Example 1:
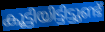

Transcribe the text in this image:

കൂട്ടിയിട്ടിട്ടുണ്ട്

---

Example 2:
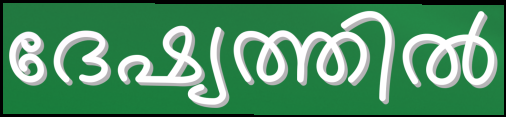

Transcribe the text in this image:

ദേഷ്യത്തിൽ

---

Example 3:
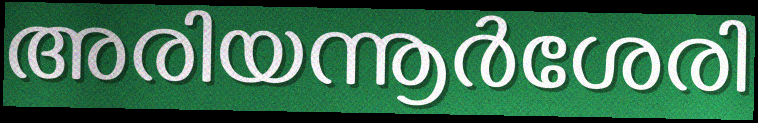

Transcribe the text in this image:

അരിയന്നൂർശേരി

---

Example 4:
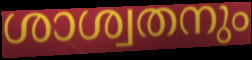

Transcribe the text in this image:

ശാശ്വതനും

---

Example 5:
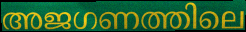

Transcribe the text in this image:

അജഗണത്തിലെ